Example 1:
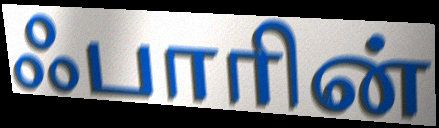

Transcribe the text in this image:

ஃபாரின்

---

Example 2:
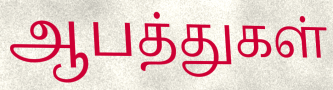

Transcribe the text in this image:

ஆபத்துகள்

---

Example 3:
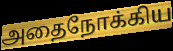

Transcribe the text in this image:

அதைநோக்கிய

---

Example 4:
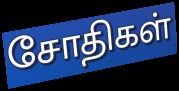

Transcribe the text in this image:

சோதிகள்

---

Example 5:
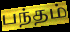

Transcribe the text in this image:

பந்தம்